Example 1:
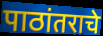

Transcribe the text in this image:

पाठांतराचे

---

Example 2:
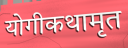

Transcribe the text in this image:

योगीकथामृत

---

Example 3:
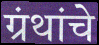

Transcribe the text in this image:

ग्रंथांचे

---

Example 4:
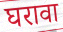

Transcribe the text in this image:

घरावा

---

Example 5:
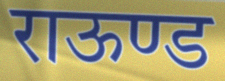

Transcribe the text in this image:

राऊण्ड